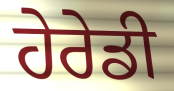
ਹੇਰੇਡੀ